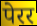
पेरर